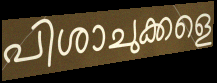
പിശാചുക്കളെ